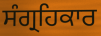
ਸੰਗ੍ਰਹਿਕਾਰ